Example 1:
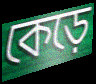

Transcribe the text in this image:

কেড়ে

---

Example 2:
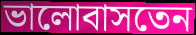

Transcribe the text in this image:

ভালোবাসতেন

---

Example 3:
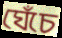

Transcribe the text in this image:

ঘেঁচে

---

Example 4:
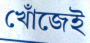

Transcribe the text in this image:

খোঁজেই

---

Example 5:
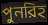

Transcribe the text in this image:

পুনরিহ